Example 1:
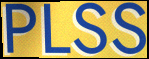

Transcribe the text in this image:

PLSS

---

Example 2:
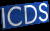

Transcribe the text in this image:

ICDS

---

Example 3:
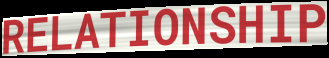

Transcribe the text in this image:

RELATIONSHIP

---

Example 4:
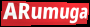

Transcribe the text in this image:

ARumuga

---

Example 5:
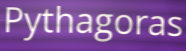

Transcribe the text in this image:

Pythagoras